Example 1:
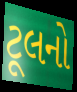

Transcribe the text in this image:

ટૂલનો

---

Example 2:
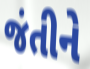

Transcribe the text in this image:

જંતીને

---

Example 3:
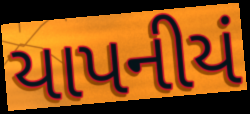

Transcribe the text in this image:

યાપનીયં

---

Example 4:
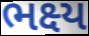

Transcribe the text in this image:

ભક્ષ્ય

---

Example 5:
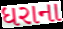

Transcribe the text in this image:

ધરાના